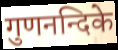
गुणनन्दिके